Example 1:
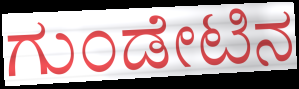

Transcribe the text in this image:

ಗುಂಡೇಟಿನ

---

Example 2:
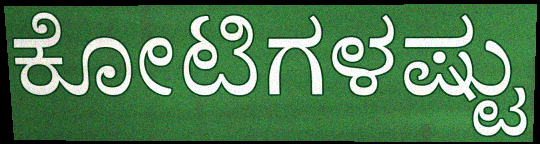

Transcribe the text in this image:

ಕೋಟಿಗಳಷ್ಟು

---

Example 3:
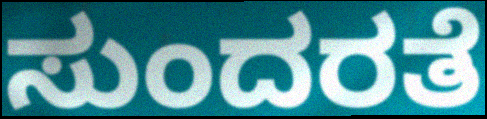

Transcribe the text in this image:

ಸುಂದರತೆ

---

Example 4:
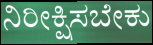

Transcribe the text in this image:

ನಿರೀಕ್ಷಿಸಬೇಕು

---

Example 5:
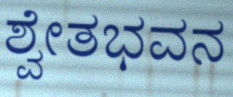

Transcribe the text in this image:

ಶ್ವೇತಭವನ